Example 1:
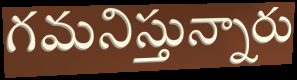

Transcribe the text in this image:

గమనిస్తున్నారు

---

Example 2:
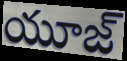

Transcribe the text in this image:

యూజ్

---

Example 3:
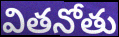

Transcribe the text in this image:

వితనోతు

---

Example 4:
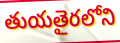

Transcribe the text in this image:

తుయతైరలోని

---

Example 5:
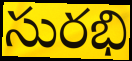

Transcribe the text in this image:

సురభి